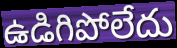
ఉడిగిపోలేదు